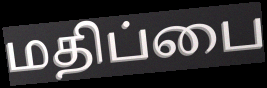
மதிப்பை